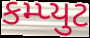
કમ્પ્યુટ